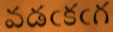
వడఁకఁగ